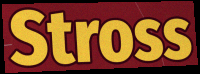
Stross